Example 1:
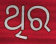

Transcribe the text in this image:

ଥିର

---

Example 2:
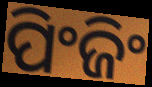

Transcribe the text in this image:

ପିଂଜିଂ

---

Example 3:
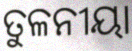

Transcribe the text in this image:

ତୁଳନୀୟା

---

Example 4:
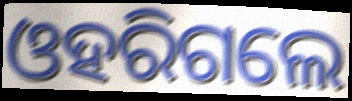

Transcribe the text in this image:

ଓହରିଗଲେ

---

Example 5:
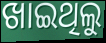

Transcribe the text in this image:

ଖାଇଥିଲୁ